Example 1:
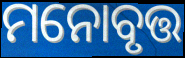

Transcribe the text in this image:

ମନୋବୃତ୍ତ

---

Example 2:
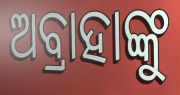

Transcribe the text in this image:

ଅବ୍ରାହାଙ୍କୁ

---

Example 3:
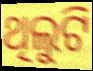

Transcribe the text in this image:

ଥିଲୁଟି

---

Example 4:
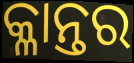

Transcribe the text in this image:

କ୍ଳାନ୍ତର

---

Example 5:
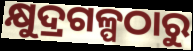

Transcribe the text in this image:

କ୍ଷୁଦ୍ରଗଳ୍ପଠାରୁ